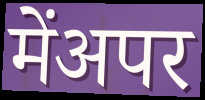
मेंअपर